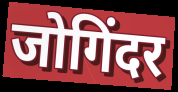
जोगिंदर